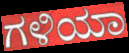
ಗಳಿಯಾ